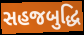
સહજબુદ્ધિ